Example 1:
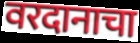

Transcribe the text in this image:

वरदानाचा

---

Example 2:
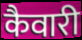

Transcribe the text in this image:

कैवारी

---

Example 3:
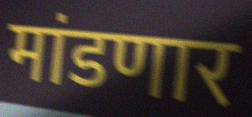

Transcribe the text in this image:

मांडणार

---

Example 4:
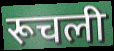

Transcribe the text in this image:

रूचली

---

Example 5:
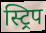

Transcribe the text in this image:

स्ट्रिप